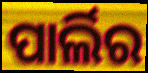
ପାର୍ଲିର